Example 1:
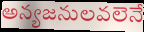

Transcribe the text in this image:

అన్యజనులవలెనే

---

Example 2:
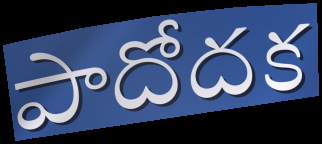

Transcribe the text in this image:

పాదోదక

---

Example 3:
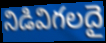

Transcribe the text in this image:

నిడివిగలదై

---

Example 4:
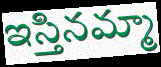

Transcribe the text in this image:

ఇస్తినమ్మా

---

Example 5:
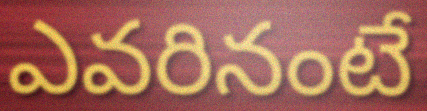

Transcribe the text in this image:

ఎవరినంటే